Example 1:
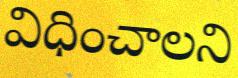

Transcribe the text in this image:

విధించాలని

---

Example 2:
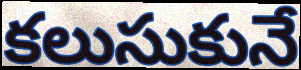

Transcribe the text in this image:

కలుసుకునే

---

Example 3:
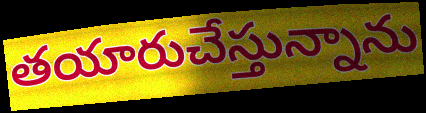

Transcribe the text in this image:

తయారుచేస్తున్నాను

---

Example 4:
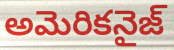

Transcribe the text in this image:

అమెరికనైజ్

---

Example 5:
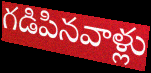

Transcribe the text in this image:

గడిపినవాళ్లు